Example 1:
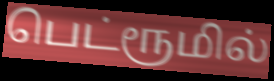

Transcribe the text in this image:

பெட்ரூமில்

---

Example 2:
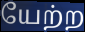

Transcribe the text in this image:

யேற்ற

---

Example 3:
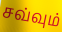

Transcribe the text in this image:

சவ்வும்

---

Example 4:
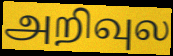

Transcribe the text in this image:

அறிவுல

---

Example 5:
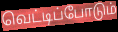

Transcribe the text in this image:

வெட்டிப்போடும்